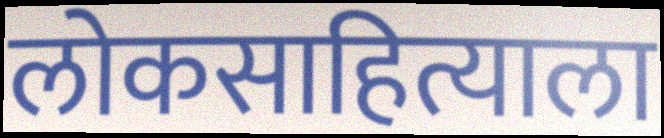
लोकसाहित्याला